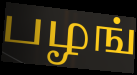
பழங்